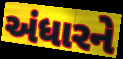
અંધારને